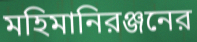
মহিমানিরঞ্জনের